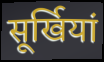
सूर्खियां